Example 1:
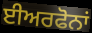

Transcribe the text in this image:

ਈਅਰਫੋਨਾਂ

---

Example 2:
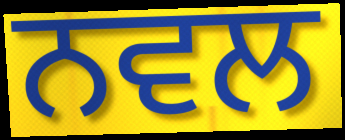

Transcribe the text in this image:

ਨਵਲ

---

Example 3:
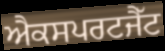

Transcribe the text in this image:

ਐਕਸਪਰਟਜੈੱਟ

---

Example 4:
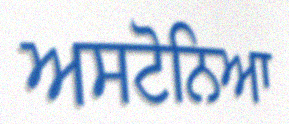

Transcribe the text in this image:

ਅਸਟੋਨਿਆ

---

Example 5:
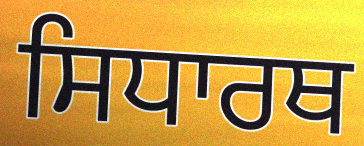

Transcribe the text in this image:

ਸਿਧਾਰਥ